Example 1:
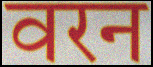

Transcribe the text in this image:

वरन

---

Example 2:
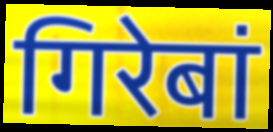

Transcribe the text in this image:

गिरेबां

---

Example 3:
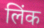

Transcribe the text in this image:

लिंक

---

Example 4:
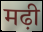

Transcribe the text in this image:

मढ़ी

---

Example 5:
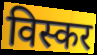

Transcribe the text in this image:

विस्कर